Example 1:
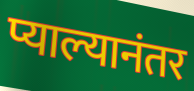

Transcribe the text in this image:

प्याल्यानंतर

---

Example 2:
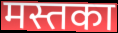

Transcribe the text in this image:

मस्तका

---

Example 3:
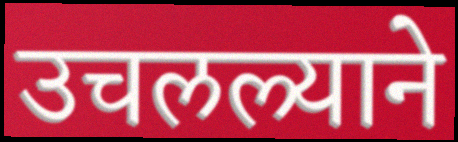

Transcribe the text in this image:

उचलल्याने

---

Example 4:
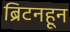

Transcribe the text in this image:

ब्रिटनहून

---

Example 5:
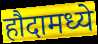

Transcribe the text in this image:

हौदामध्ये